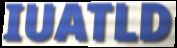
IUATLD